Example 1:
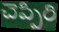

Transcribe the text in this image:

చెప్పిరి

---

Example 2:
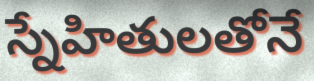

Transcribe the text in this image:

స్నేహితులతోనే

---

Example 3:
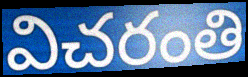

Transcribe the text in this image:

విచరంతి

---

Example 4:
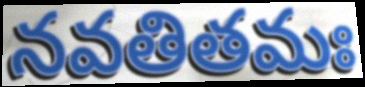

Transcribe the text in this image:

నవతితమః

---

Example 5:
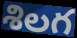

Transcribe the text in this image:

శిలగ